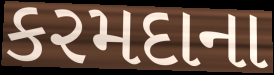
કરમદાના